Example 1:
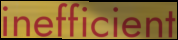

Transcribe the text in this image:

inefficient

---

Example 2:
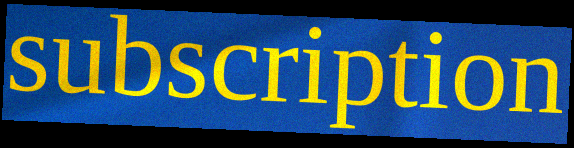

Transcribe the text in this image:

subscription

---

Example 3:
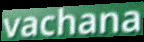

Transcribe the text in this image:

vachana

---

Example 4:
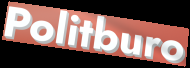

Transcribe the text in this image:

Politburo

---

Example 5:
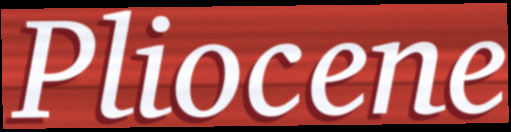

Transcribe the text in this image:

Pliocene